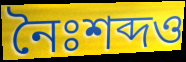
নৈঃশব্দও